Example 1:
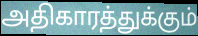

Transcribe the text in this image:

அதிகாரத்துக்கும்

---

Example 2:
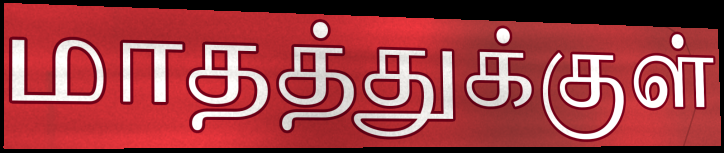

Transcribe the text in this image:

மாதத்துக்குள்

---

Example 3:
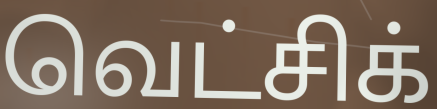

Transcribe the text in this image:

வெட்சிக்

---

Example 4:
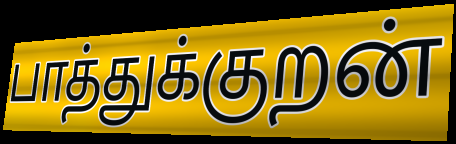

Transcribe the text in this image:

பாத்துக்குறன்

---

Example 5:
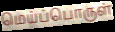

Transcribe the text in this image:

மெய்ப்பொருள்